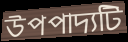
উপপাদ্যটি